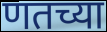
णतच्या